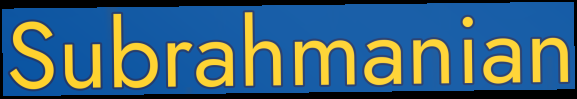
Subrahmanian